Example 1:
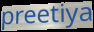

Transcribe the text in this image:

preetiya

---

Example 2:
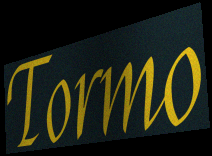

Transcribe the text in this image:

Tormo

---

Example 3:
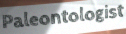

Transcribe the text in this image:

Paleontologist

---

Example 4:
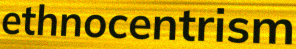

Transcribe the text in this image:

ethnocentrism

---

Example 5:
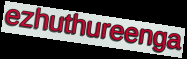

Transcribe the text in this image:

ezhuthureenga